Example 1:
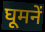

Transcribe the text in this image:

घूमनें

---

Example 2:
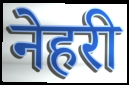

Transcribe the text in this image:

नेहरी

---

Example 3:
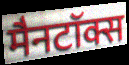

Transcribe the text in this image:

मैनटॉक्स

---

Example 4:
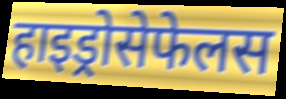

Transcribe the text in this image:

हाइड्रोसेफेलस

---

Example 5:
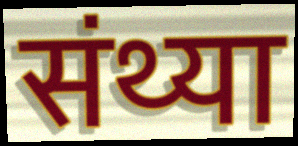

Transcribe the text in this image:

संथ्या